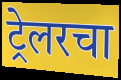
ट्रेलरचा